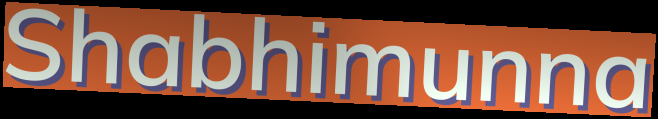
Shabhimunna